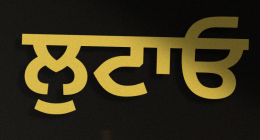
ਲੁਟਾਓ